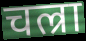
चल्रा